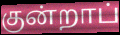
குன்றாப்